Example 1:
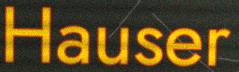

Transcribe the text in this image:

Hauser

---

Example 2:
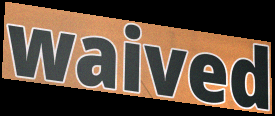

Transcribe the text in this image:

waived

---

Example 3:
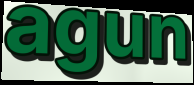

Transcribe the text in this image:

agun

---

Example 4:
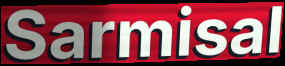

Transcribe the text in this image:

Sarmisal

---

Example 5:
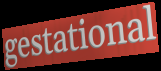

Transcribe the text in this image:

gestational